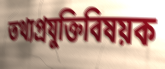
তথ্যপ্রযুক্তিবিষয়ক